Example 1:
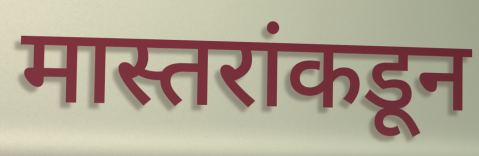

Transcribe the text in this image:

मास्तरांकडून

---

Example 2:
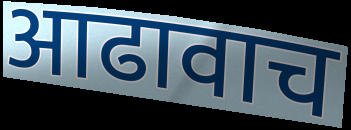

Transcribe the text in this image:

आढावाच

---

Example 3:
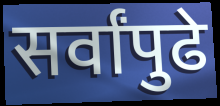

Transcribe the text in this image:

सर्वांपुढे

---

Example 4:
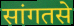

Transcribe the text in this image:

सांगतसे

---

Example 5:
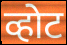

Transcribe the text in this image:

व्होट